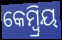
କେମ୍ବ୍ରିୟ